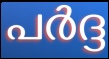
പർദ്ദ